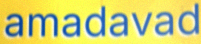
amadavad